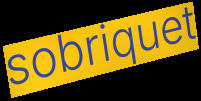
sobriquet